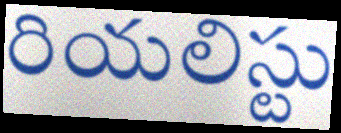
రియలిస్టు